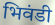
भिवंडी